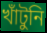
খাঁটুনি